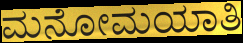
ಮನೋಮಯಾತಿ